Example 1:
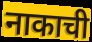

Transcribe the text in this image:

नाकाची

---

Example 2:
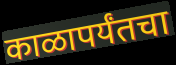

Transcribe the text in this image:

काळापर्यंतचा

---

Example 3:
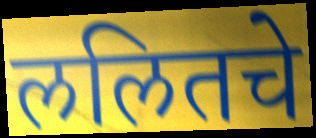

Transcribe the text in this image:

ललितचे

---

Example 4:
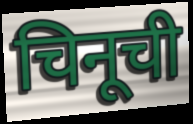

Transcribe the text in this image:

चिनूची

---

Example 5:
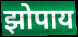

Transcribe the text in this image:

झोपाय